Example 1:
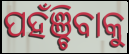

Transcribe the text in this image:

ପହଁଞ୍ଚିବାକୁ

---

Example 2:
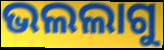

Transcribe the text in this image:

ଭଲଲାଗୁ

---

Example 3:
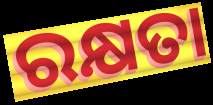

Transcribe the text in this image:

ରକ୍ଷତା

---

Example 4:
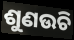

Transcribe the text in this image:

ଶୁଣଉଚି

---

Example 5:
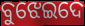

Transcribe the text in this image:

ବୁଝେଇଦେ